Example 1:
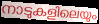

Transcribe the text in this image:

നാടുകളിലെയും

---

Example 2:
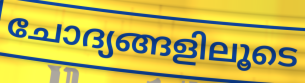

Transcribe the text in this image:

ചോദ്യങ്ങളിലൂടെ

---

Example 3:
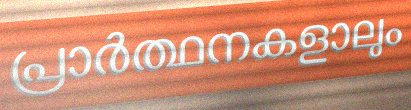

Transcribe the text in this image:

പ്രാർത്ഥനകളാലും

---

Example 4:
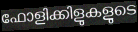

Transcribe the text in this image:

ഫോളിക്കിളുകളുടെ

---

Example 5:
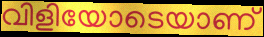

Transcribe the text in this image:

വിളിയോടെയാണ്